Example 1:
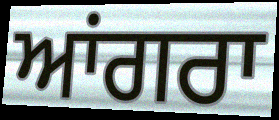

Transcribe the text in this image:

ਆਂਗਰਾ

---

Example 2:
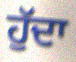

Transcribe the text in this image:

ਹੁੱਦਾ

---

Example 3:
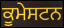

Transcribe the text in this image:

ਕੂਮੇਸਟਨ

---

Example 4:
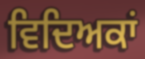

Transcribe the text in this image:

ਵਿਦਿਅਕਾਂ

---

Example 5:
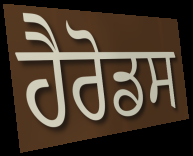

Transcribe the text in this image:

ਹੈਰੋਡਸ